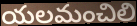
యలమంచిలి